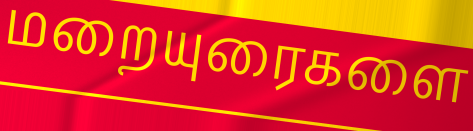
மறையுரைகளை